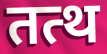
तत्थ